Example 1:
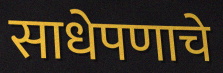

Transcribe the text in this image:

साधेपणाचे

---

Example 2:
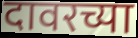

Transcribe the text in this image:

दावरच्या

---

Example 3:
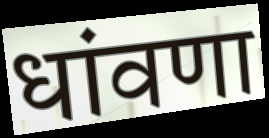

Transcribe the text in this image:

धांवणा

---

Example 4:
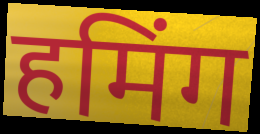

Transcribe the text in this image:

हमिंग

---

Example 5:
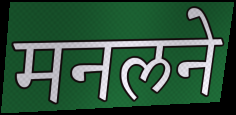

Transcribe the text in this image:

मनलने